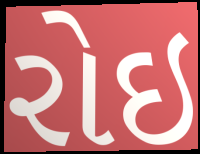
રોઇ